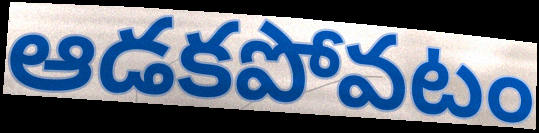
ఆడకపోవటం